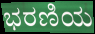
ಭರಣಿಯ